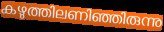
കഴുത്തിലണിഞ്ഞിരുന്നു